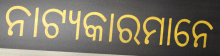
ନାଟ୍ୟକାରମାନେ